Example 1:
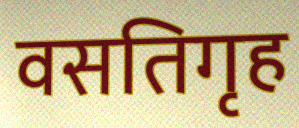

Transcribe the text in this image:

वसतिगृह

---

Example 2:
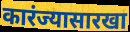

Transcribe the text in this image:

कारंज्यासारखा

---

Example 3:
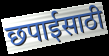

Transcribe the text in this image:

छपाईसाठी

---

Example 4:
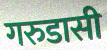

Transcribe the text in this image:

गरुडासी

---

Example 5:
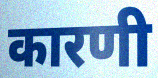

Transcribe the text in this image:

कारणी